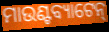
ମାଉଣ୍ଟବ୍ୟାଟେନ୍